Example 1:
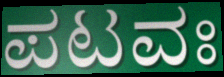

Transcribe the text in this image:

ಪಟವಃ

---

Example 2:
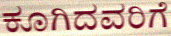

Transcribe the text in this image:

ಕೂಗಿದವರಿಗೆ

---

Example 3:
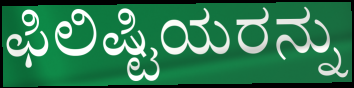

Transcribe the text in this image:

ಫಿಲಿಷ್ಟಿಯರನ್ನು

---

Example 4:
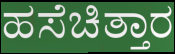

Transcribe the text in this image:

ಹಸೆಚಿತ್ತಾರ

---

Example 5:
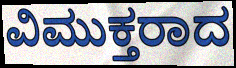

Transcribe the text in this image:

ವಿಮುಕ್ತರಾದ